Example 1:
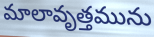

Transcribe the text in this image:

మాలావృత్తమును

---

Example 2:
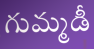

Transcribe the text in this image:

గుమ్మడీ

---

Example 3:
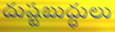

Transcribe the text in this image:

దుష్టబుద్ధులు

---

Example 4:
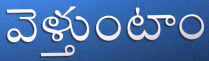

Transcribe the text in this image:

వెళ్తుంటాం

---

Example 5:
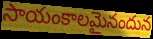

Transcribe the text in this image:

సాయంకాలమైనందున